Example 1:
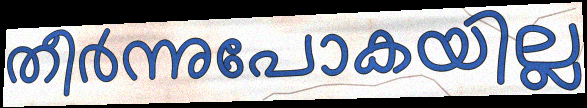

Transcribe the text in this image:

തീർന്നുപോകയില്ല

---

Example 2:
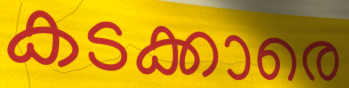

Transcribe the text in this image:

കടക്കാരെ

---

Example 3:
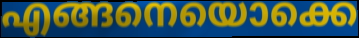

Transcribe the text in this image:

എങ്ങനെയൊക്കെ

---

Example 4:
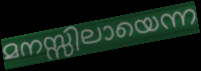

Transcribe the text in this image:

മനസ്സിലായെന്ന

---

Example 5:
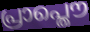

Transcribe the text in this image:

പ്രാപ്തൌ